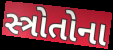
સ્ત્રોતોના